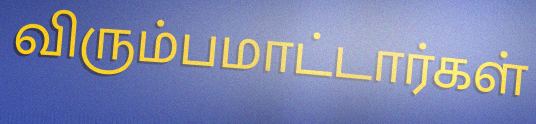
விரும்பமாட்டார்கள்